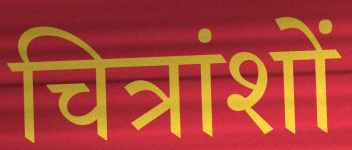
चित्रांशों